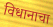
विधानाचा